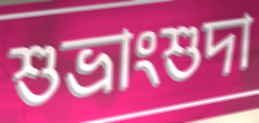
শুভ্রাংশুদা